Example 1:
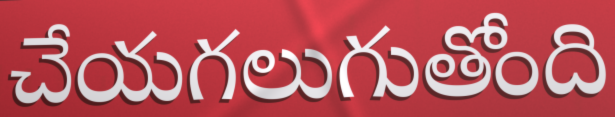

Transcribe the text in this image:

చేయగలుగుతోంది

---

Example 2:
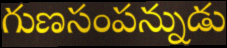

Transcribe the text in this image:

గుణసంపన్నుడు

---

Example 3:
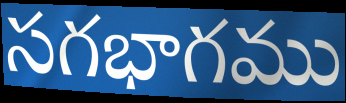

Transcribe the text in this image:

సగభాగము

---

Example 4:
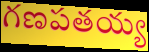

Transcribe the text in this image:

గణపతయ్య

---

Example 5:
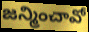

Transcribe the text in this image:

జన్మించావో